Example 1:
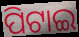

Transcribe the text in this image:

ପିଟାଇ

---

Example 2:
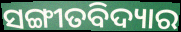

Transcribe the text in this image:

ସଙ୍ଗୀତବିଦ୍ୟାର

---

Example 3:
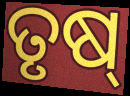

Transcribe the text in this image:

ତୃଷ୍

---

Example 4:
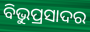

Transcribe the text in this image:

ବିଭୁପ୍ରସାଦର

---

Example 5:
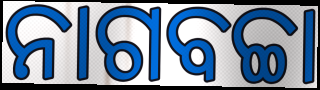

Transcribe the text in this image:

ନାଗବଚ୍ଚା